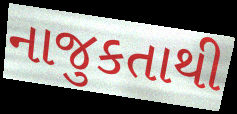
નાજુકતાથી